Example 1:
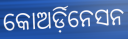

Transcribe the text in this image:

କୋଅର୍ଡ଼ିନେସନ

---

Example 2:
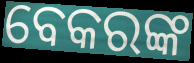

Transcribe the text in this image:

ବେକରଙ୍କ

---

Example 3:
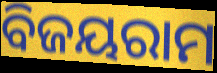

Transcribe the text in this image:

ବିଜୟରାମ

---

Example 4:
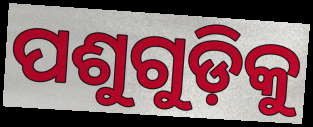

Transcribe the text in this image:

ପଶୁଗୁଡ଼ିକୁ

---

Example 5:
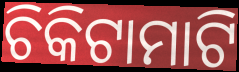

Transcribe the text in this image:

ଚିକିଟାମାଟି